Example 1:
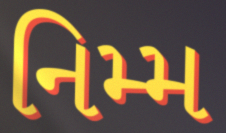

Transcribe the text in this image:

નિમ્મ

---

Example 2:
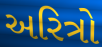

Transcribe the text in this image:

અરિત્રો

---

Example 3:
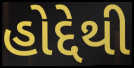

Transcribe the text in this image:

હોદ્દેથી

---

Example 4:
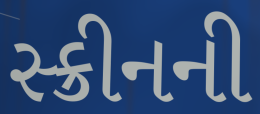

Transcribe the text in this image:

સ્ક્રીનની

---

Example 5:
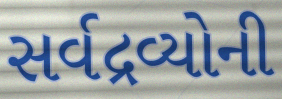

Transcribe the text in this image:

સર્વદ્રવ્યોની